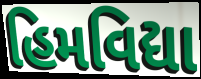
હિમવિદ્યા